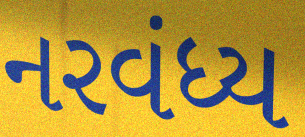
નરવંધ્ય